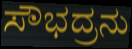
ಸೌಭದ್ರನು